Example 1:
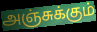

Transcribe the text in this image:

அஞ்சுக்கும்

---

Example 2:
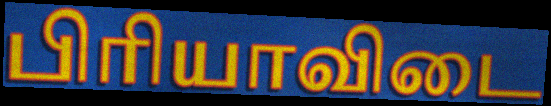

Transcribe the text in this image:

பிரியாவிடை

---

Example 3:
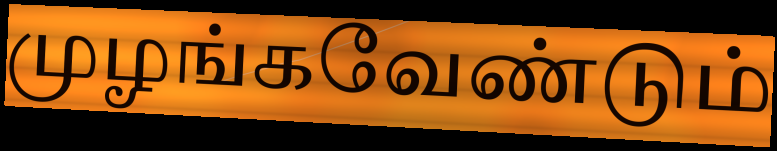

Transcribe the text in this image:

முழங்கவேண்டும்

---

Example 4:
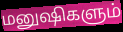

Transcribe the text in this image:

மனுஷிகளும்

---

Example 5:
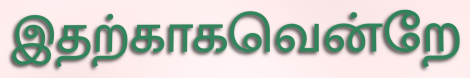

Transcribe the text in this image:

இதற்காகவென்றே